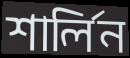
শার্লিন